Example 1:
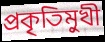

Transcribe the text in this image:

প্রকৃতিমুখী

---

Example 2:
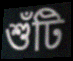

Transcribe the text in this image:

শুঁটি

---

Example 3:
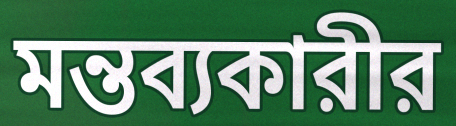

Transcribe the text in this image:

মন্তব্যকারীর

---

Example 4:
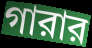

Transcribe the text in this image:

গারার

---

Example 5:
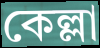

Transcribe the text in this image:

কেল্লা